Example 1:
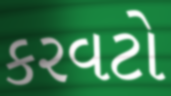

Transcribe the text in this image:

કરવટો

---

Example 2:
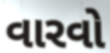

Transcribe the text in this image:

વારવો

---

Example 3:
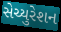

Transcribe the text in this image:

સેચ્યુરેશન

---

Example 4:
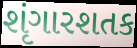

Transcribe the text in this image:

શૃંગારશતક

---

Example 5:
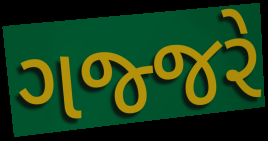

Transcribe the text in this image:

ગજ્જરે